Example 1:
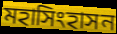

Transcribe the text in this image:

মহাসিংহাসন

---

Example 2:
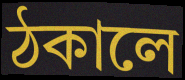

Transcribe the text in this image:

ঠকালে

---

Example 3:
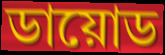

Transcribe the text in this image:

ডায়োড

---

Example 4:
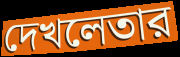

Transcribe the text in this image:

দেখলেতার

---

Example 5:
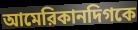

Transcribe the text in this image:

আমেরিকানদিগকে